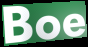
Boe